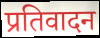
प्रतिवादन